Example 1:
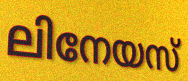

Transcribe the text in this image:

ലിനേയസ്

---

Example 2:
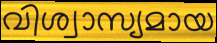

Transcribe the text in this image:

വിശ്വാസ്യമായ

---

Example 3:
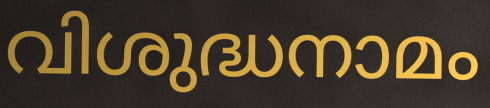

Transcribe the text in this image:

വിശുദ്ധനാമം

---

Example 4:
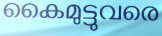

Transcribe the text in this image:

കൈമുട്ടുവരെ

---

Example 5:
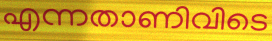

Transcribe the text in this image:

എന്നതാണിവിടെ